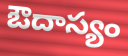
ఔదాస్యం